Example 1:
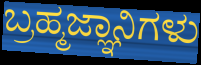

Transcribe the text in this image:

ಬ್ರಹ್ಮಜ್ಞಾನಿಗಳು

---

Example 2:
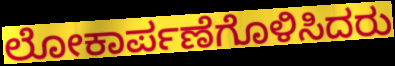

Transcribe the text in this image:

ಲೋಕಾರ್ಪಣೆಗೊಳಿಸಿದರು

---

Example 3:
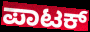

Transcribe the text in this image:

ಪಾಟಕ್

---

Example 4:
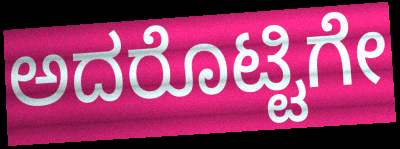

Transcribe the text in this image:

ಅದರೊಟ್ಟಿಗೇ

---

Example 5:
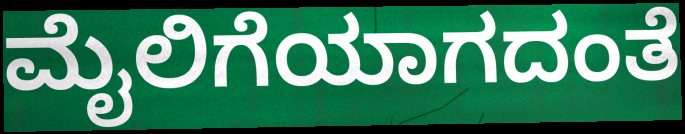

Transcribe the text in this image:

ಮೈಲಿಗೆಯಾಗದಂತೆ